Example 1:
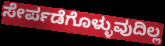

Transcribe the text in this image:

ಸೇರ್ಪಡೆಗೊಳ್ಳುವುದಿಲ್ಲ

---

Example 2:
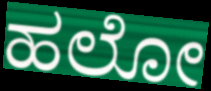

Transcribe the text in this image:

ಹಲೋ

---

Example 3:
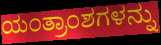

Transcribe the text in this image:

ಯಂತ್ರಾಂಶಗಳನ್ನು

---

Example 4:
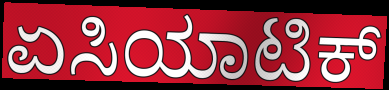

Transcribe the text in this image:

ಏಸಿಯಾಟಿಕ್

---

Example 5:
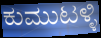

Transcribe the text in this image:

ಕುಮುಟಳ್ಳಿ